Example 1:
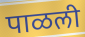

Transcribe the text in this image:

पाळली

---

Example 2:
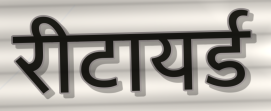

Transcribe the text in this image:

रीटायर्ड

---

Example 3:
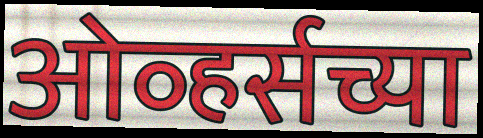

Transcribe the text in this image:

ओव्हर्सच्या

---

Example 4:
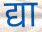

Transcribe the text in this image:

द्या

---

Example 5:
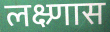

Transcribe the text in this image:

लक्ष्र्णास